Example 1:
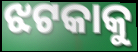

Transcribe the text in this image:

ଝଟକାକୁ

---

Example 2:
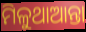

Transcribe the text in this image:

ମିଳୁଥାଆନ୍ତା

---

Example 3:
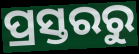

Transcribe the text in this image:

ପ୍ରସ୍ତରରୁ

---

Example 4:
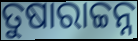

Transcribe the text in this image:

ତୁଷାରାଚ୍ଚନ୍ନ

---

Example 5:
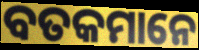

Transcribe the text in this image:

ବତକମାନେ